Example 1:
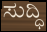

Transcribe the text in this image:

ಸುದ್ಧಿ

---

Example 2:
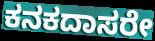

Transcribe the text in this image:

ಕನಕದಾಸರೇ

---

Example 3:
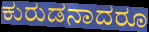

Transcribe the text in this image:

ಕುರುಡನಾದರೂ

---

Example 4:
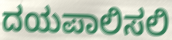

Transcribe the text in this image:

ದಯಪಾಲಿಸಲಿ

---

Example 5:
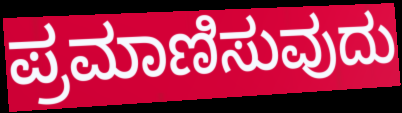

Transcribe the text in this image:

ಪ್ರಮಾಣಿಸುವುದು